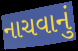
નાચવાનું